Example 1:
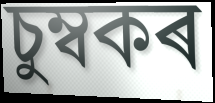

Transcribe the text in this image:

চুম্বকৰ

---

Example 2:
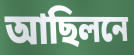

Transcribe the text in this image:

আছিলনে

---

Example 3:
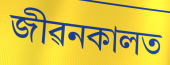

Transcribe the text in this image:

জীৱনকালত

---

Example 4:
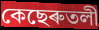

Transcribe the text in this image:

কেছেৰুতলী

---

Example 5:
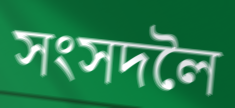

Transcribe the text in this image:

সংসদলৈ